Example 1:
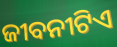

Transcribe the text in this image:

ଜୀବନୀଟିଏ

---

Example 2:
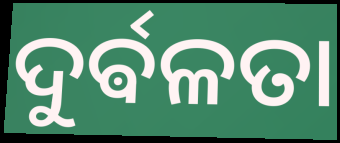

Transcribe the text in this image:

ଦୁର୍ଵଳତା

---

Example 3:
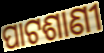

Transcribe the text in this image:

ପାଟଶାଣୀ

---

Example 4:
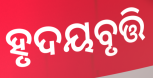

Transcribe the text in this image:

ହୃଦୟବୃତ୍ତି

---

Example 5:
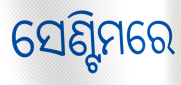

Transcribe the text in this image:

ସେଣ୍ଟିମରେ